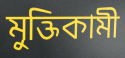
মুক্তিকামী